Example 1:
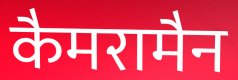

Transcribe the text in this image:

कैमरामैन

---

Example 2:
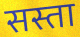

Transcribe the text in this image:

सस्ता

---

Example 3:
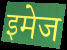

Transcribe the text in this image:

इमेज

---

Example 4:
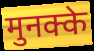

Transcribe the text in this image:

मुनक्के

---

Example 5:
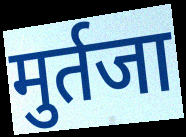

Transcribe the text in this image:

मुर्तजा